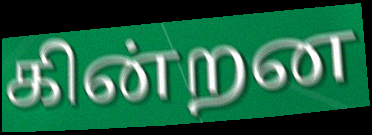
கின்றன